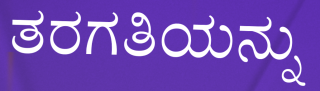
ತರಗತಿಯನ್ನು